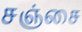
சஞ்சை